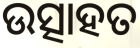
ଉତ୍ସାହତ